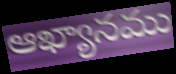
ఆఖ్యానము